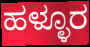
ಹಳ್ಳೂರ